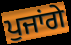
ਪੁਜਾਂਗੇ